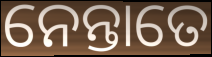
ନେନ୍ତାତେ